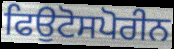
ਫਿਉਟੋਸਪੋਰੀਨ